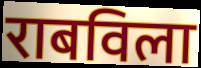
राबविला